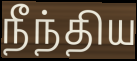
நீந்திய